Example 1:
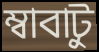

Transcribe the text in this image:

ম্বাবাটু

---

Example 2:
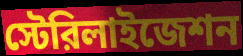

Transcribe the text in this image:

স্টেরিলাইজেশন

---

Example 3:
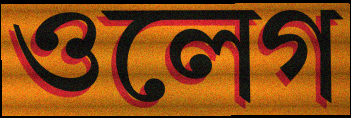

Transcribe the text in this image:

ওলেগ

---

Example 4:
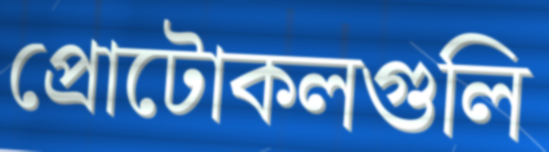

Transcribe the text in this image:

প্রোটোকলগুলি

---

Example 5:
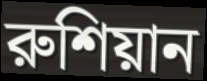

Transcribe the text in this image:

রুশিয়ান